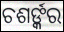
ଚଶର୍ଙ୍କର